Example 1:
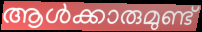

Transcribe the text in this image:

ആൾക്കാരുമുണ്ട്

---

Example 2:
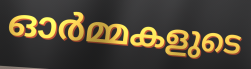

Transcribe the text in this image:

ഓർമ്മകളുടെ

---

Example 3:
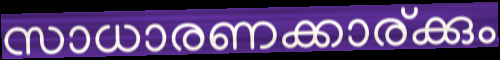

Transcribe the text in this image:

സാധാരണക്കാര്ക്കും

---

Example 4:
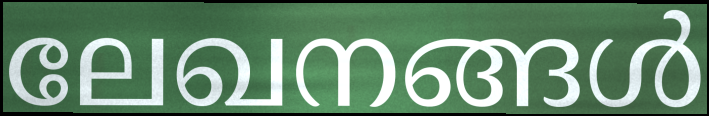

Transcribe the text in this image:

ലേഖനങ്ങൾ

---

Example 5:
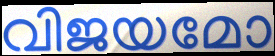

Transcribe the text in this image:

വിജയമോ